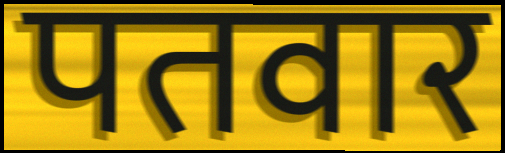
पतवार